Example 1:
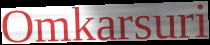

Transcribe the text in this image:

Omkarsuri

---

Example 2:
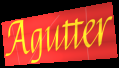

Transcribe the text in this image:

Agutter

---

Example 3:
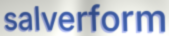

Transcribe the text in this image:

salverform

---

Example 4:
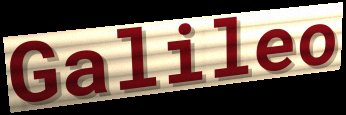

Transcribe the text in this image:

Galileo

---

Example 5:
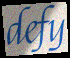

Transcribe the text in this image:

defy